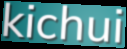
kichui